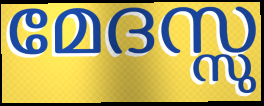
മേദസ്സു